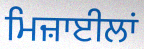
ਮਿਜ਼ਾਈਲਾਂ